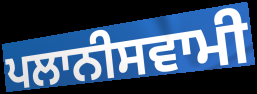
ਪਲਾਨੀਸਵਾਮੀ